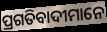
ପ୍ରଗତିବାଦୀମାନେ